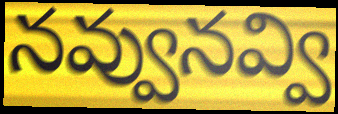
నవ్వునవ్వి